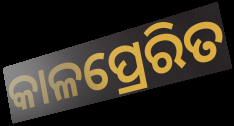
କାଳପ୍ରେରିତ